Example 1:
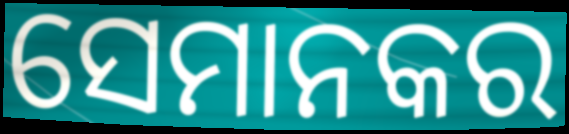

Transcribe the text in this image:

ସେମାନକର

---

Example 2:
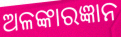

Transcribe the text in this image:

ଅଳଙ୍କାରଜ୍ଞାନ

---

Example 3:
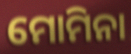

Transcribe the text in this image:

ମୋମିନା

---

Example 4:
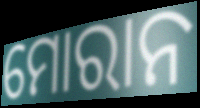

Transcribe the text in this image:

ମୋରାନ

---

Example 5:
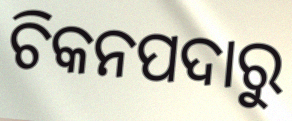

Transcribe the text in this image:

ଚିକନପଦାରୁ